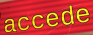
accede